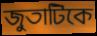
জুতাটিকে